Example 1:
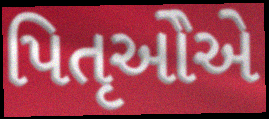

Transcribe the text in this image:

પિતૃઓેએ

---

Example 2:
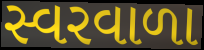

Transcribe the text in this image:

સ્વરવાળા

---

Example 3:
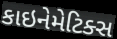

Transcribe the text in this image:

કાઇનેમેટિક્સ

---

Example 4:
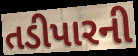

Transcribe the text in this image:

તડીપારની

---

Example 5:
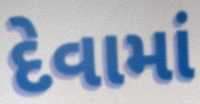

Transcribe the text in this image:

દેવામાં